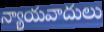
న్యాయవాదులు